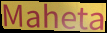
Maheta